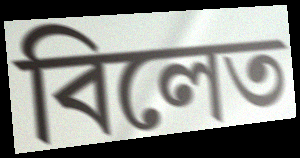
বিলেত